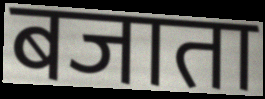
बजाता